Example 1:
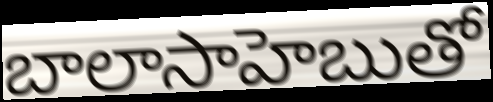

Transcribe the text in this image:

బాలాసాహెబుతో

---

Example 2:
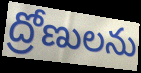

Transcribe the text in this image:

ద్రోణులను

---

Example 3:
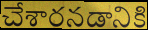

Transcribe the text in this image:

చేశారనడానికి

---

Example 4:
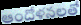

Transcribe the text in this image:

ఆందోళనలతో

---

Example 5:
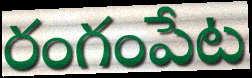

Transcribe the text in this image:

రంగంపేట